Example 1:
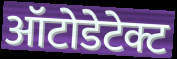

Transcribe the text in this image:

ऑटोडेटेक्ट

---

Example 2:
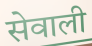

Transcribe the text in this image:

सेवाली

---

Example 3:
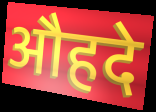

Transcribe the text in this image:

औहदे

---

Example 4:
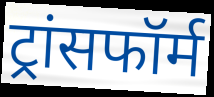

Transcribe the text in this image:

ट्रांसफॉर्म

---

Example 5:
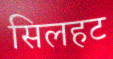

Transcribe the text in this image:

सिलहट